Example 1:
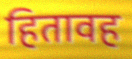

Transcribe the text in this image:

हितावह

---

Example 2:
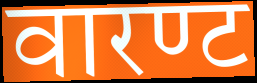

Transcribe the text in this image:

वारण्ट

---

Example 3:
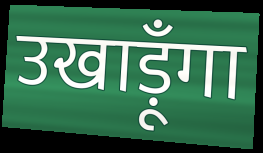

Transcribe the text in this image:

उखाड़ूँगा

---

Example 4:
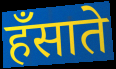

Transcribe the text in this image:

हँसाते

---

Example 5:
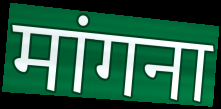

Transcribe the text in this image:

मांगना